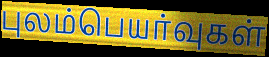
புலம்பெயர்வுகள்